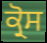
ਕ੍ਰੋਸ